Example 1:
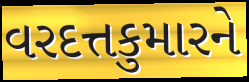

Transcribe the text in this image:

વરદત્તકુમારને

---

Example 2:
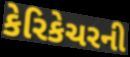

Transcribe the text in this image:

કેરિકેચરની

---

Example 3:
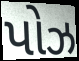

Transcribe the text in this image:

પોઝ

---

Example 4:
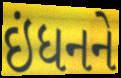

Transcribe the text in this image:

ઇંધનને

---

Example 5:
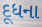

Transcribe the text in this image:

દૂધના